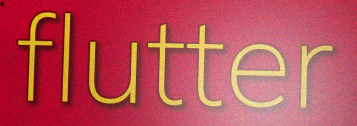
flutter